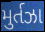
મુર્તઝા